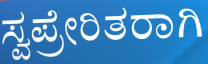
ಸ್ವಪ್ರೇರಿತರಾಗಿ